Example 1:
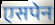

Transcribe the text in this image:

एसपेन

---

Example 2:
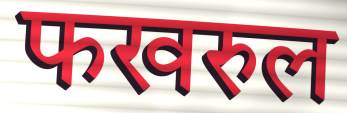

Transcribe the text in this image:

फखरुल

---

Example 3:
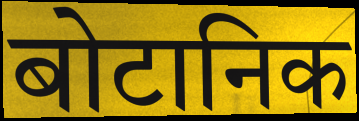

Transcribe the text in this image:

बोटानिक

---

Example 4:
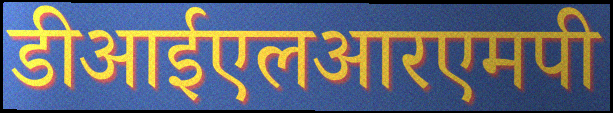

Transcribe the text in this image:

डीआईएलआरएमपी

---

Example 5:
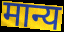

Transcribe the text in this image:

मान्य